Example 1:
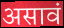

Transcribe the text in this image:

असावं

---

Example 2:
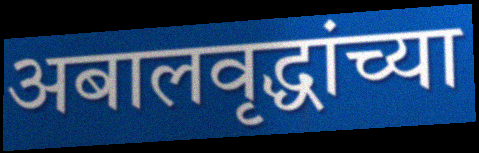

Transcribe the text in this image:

अबालवृद्धांच्या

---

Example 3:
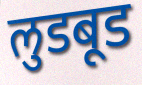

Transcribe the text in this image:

लुडबूड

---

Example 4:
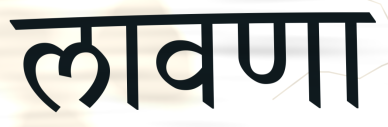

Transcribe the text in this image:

लावणा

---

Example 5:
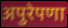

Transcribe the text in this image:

अपुरेपणा